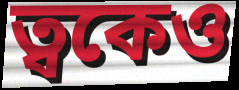
ত্বকেও